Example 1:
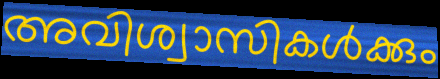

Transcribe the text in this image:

അവിശ്വാസികൾക്കും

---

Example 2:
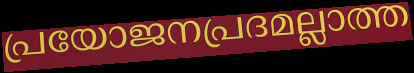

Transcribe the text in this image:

പ്രയോജനപ്രദമല്ലാത്ത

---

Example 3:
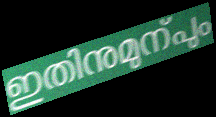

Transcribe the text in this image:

ഇതിനുമുന്പും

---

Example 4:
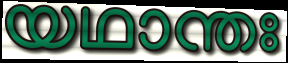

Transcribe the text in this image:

യഥാന്തഃ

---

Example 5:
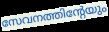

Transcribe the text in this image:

സേവനത്തിന്റേയും